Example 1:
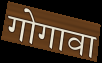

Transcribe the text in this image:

गोगावा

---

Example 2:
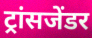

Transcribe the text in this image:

ट्रांसजेंडर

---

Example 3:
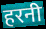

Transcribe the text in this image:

हरनी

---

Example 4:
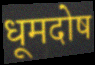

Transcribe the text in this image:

धूमदोष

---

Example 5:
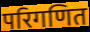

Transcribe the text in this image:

परिगणित